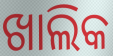
ଖାଲିକ